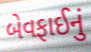
બેવફાઈનું